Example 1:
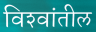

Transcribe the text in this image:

विश्वांतील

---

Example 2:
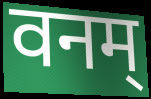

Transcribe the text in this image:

वनम्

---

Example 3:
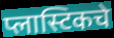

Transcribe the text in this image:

प्लास्टिकचे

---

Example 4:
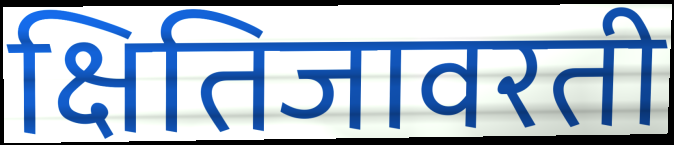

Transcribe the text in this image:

क्षितिजावरती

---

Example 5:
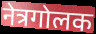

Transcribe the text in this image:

नेत्रगोलक